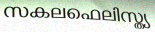
സകലഫെലിസ്ത്യ